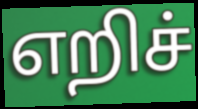
எறிச்